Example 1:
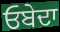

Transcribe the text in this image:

ਓਬੇਦਾ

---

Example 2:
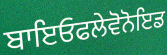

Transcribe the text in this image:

ਬਾਇਓਫਲੇਵੋਨੋਇਡ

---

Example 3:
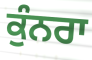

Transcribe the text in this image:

ਕੁੰਨਰਾ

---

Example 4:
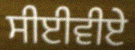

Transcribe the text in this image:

ਸੀਈਵੀਏ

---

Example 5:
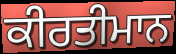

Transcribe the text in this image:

ਕੀਰਤੀਮਾਨ